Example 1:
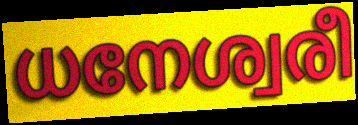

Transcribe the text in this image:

ധനേശ്വരീ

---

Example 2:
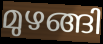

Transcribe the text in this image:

മുഴങ്ങി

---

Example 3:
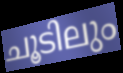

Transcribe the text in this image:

ചൂടിലും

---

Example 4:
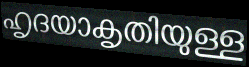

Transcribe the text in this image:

ഹൃദയാകൃതിയുള്ള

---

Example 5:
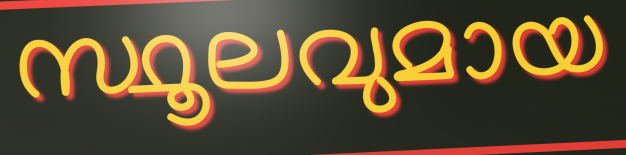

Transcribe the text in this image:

സ്ഥൂലവുമായ